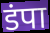
डंपा